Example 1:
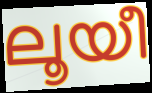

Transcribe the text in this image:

ലൂയീ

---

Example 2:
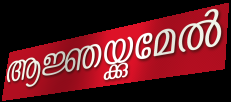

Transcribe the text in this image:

ആജ്ഞയ്ക്കുമേൽ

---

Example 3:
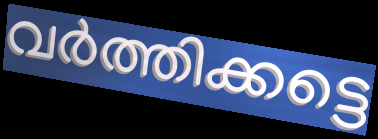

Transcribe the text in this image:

വർത്തിക്കട്ടെ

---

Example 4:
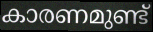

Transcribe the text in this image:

കാരണമുണ്ട്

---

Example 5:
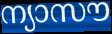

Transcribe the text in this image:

ന്യാസൗ